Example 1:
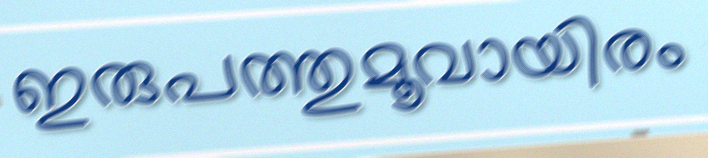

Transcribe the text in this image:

ഇരുപത്തുമൂവായിരം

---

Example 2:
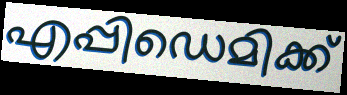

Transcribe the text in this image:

എപ്പിഡെമിക്ക്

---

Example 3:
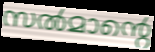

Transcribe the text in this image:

സൽമാന്റെ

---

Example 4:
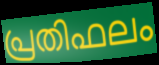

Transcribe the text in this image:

പ്രതിഫലം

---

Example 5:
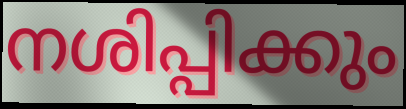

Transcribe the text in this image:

നശിപ്പിക്കും